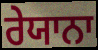
ਰੇਯਾਨਾ